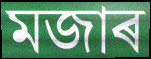
মজাৰ